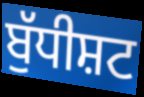
ਬੁੱਧੀਸ਼ਟ